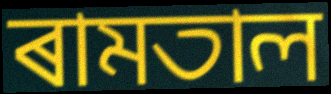
ৰামতাল